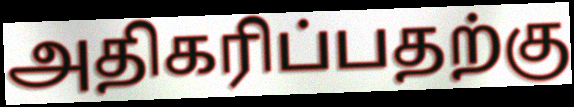
அதிகரிப்பதற்கு